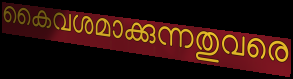
കൈവശമാക്കുന്നതുവരെ